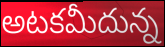
అటకమీదున్న